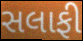
સલાફી